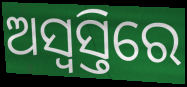
ଅସ୍ୱସ୍ତିରେ